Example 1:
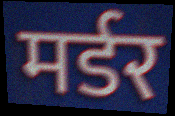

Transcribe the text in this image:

मर्डर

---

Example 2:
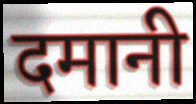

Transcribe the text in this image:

दमानी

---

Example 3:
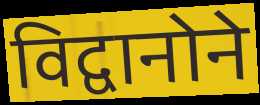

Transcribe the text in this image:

विद्वानोने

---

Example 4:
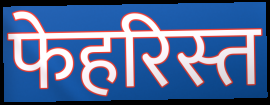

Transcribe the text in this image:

फेहरिस्‍त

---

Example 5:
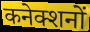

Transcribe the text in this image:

कनेक्शनों